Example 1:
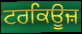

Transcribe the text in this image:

ਟਰਕਿਊਜ਼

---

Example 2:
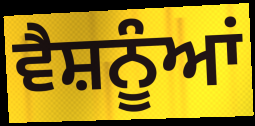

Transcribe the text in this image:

ਵੈਸ਼ਨੂੰਆਂ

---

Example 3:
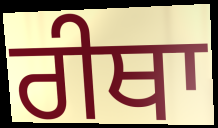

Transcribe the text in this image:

ਰੀਥਾ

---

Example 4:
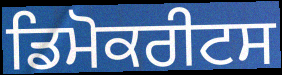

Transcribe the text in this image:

ਡਿਮੋਕਰੀਟਸ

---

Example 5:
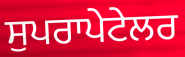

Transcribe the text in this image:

ਸੁਪਰਾਪੇਟੇਲਰ